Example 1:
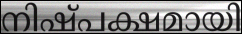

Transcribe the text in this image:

നിഷ്പക്ഷമായി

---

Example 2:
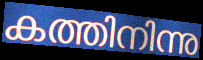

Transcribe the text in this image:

കത്തിനിന്നു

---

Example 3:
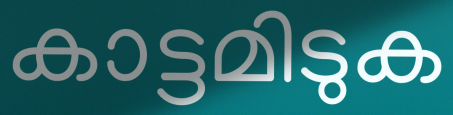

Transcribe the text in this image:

കാട്ടമിടുക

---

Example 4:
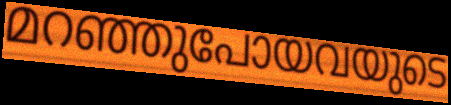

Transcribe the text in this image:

മറഞ്ഞുപോയവയുടെ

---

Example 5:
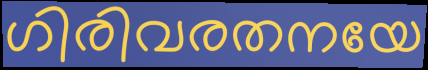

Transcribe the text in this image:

ഗിരിവരതനയേ